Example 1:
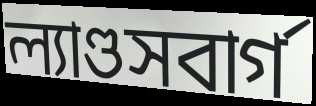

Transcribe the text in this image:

ল্যাণ্ডসবার্গ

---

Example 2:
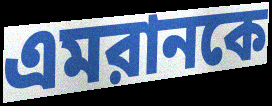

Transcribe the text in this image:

এমরানকে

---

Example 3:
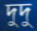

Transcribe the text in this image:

দুদু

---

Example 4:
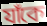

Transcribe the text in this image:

যাঁকে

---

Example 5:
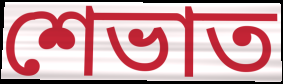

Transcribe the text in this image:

শেভাত